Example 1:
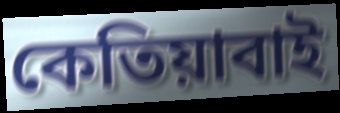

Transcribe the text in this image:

কেতিয়াবাই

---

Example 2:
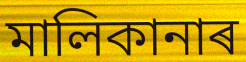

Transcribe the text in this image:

মালিকানাৰ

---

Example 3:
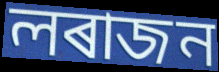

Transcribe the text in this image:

লৰাজন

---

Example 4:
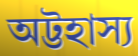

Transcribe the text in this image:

অট্টহাস্য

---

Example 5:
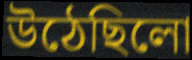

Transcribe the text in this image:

উঠেছিলো